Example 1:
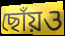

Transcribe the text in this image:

ছোঁয়ও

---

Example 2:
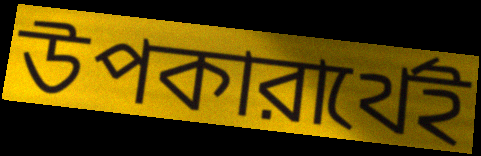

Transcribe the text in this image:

উপকারার্থেই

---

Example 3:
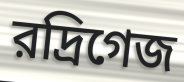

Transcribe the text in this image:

রদ্রিগেজ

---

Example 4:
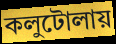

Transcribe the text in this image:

কলুটোলায়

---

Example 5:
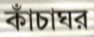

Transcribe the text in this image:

কাঁচাঘর